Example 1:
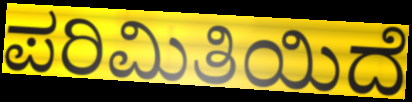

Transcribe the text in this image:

ಪರಿಮಿತಿಯಿದೆ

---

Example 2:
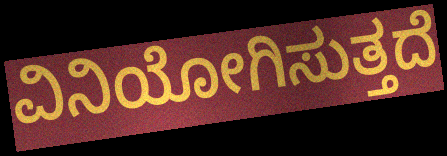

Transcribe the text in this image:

ವಿನಿಯೋಗಿಸುತ್ತದೆ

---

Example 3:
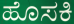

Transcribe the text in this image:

ಹೊಸಕಿ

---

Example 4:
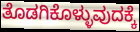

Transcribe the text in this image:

ತೊಡಗಿಕೊಳ್ಳುವುದಕ್ಕೆ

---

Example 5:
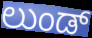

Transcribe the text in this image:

ಲುಂಡ್